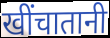
खींचातानी